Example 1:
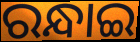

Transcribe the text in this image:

ରନ୍ଧାଇ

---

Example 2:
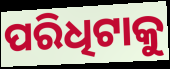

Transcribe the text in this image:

ପରିଧିଟାକୁ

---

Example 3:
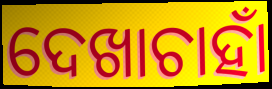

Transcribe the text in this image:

ଦେଖାଚାହାଁ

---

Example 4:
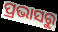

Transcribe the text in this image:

ପ୍ରଭାସରୁ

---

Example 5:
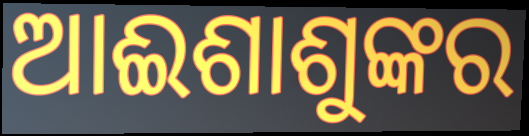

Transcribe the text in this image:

ଆଈଶାଶୁଙ୍କର